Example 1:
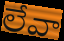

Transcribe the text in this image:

లేవా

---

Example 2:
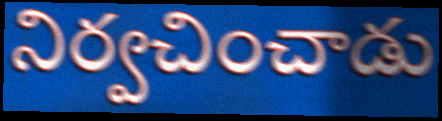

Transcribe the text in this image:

నిర్వచించాడు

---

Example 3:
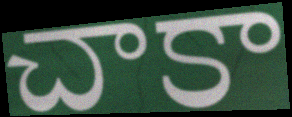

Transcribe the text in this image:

చాకా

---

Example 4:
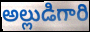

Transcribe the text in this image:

అల్లుడిగారి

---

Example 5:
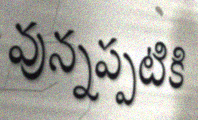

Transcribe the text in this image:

వున్నప్పటికి